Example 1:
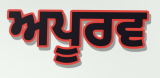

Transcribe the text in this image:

ਅਪੂਰਵ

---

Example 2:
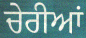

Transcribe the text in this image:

ਚੇਰੀਆਂ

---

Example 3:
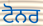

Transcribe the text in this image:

ਟੋਨਰ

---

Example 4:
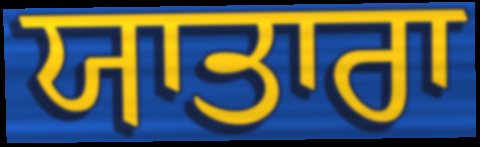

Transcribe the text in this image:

ਯਾਤਾਰਾ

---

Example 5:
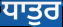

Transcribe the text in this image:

ਧਾਤੁਰ